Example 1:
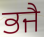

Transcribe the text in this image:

ਭਜੈ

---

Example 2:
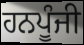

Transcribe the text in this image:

ਹਨਪੂੰਜੀ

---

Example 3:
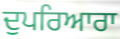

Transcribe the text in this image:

ਦੁਪਰਿਆਰਾ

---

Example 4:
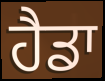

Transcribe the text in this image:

ਹੈਡਾ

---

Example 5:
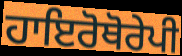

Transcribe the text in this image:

ਹਾਇਰੋਥੋਰੇਪੀ